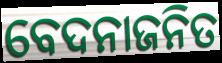
ବେଦନାଜନିତ